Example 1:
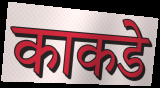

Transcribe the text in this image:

काकडे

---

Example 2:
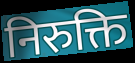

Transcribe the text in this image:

निरुक्ति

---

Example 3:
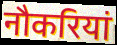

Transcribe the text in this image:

नौकरियां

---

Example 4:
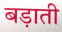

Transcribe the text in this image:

बड़ाती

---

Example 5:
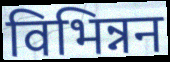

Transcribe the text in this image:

विभिन्नन